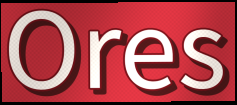
Ores